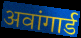
अवांगार्ड